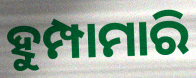
ହୁମ୍ପାମାରି